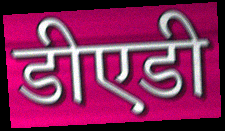
डीएडी